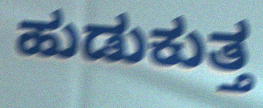
ಹುಡುಕುತ್ತ